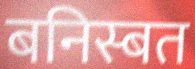
बनिस्बत